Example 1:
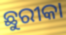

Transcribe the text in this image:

ଛୁରୀକା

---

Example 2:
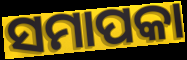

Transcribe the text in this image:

ସମାପକା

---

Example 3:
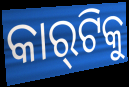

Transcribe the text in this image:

କାର୍‌ଟିକୁ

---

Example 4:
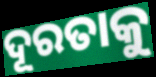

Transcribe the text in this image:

ଦୂରତାକୁ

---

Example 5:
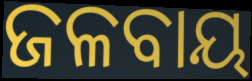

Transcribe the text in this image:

ଜଳବାୟ